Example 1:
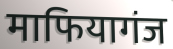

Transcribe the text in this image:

माफियागंज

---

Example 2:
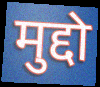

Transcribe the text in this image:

मुद्दो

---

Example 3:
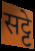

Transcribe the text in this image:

सट्टे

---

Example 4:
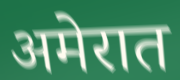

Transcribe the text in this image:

अमेरात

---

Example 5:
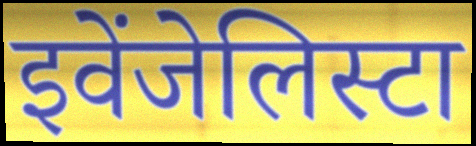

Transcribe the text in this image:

इवेंजेलिस्टा